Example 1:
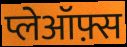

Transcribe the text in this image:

प्लेऑफ़्स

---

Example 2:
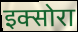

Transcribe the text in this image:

इक्सोरा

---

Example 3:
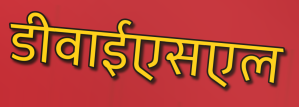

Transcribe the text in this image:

डीवाईएसएल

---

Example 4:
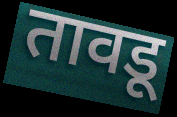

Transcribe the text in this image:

तावडू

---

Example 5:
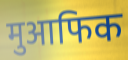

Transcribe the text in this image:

मुआफिक